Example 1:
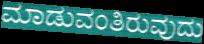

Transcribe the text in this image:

ಮಾಡುವಂತಿರುವುದು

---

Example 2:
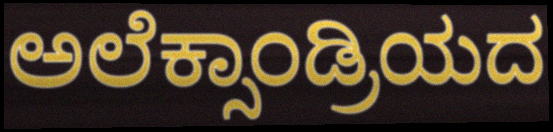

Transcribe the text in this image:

ಅಲೆಕ್ಸಾಂಡ್ರಿಯದ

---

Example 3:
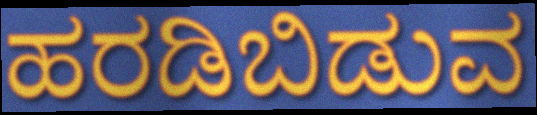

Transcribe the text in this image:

ಹರಡಿಬಿಡುವ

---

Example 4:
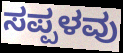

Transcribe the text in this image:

ಸಪ್ಪಳವು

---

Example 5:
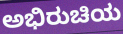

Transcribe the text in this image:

ಅಭಿರುಚಿಯ